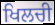
ਖਿਲਚੀ